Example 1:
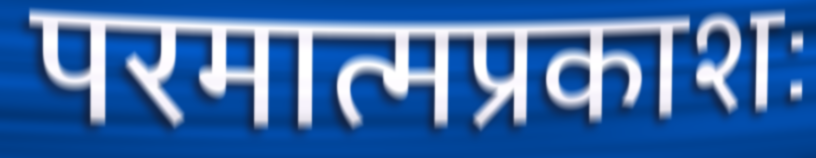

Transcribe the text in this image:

परमात्मप्रकाशः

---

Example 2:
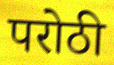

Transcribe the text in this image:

परोठी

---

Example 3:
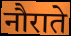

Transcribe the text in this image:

नौराते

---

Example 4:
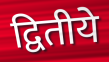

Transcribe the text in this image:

द्वितीये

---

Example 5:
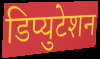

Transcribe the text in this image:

डिप्युटेशन